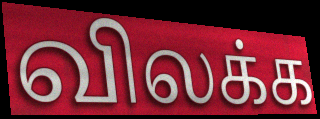
விலக்க